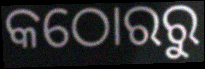
କଠୋରରୁ